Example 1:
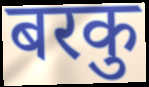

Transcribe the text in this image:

बरकु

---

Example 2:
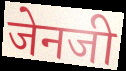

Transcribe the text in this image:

जेनजी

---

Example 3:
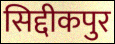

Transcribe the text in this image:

सिद्दीकपुर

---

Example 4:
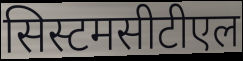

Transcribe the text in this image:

सिस्टमसीटीएल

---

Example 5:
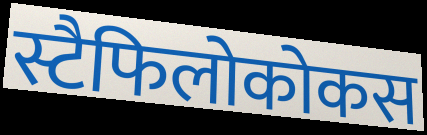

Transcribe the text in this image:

स्टैफिलोकोकस